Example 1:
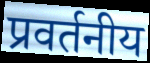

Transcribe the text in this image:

प्रवर्तनीय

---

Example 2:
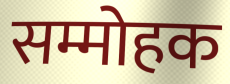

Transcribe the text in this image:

सम्मोहक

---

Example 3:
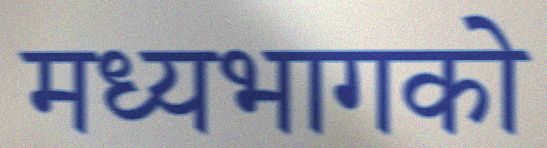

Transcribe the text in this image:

मध्यभागको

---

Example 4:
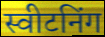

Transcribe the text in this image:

स्वीटनिंग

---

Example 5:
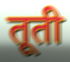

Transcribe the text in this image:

तूती